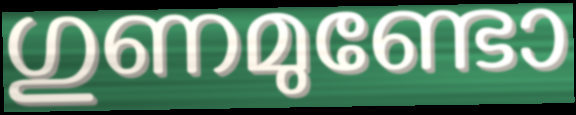
ഗുണമുണ്ടോ